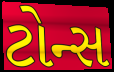
ટોન્સ